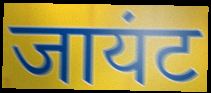
जायंट